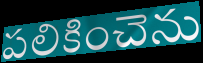
పలికించెను